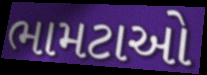
ભામટાઓ